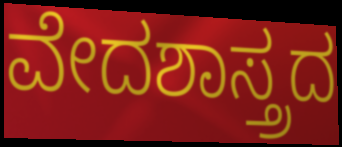
ವೇದಶಾಸ್ತ್ರದ